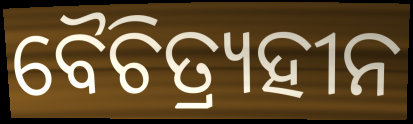
ବୈଚିତ୍ର୍ୟହୀନ